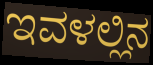
ಇವಳಲ್ಲಿನ